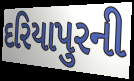
દરિયાપુરની